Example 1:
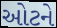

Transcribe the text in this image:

ઓટને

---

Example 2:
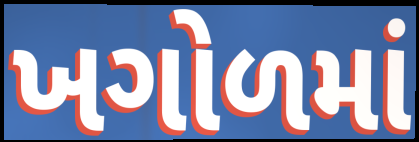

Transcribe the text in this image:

ખગોળમાં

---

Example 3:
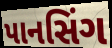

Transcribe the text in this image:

પાનસિંગ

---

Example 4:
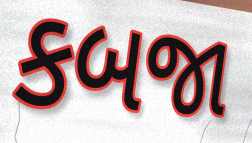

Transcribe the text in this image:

કબજા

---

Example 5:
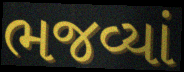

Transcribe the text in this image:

ભજવ્યાં